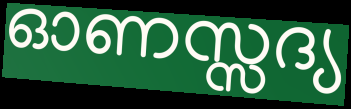
ഓണസ്സദ്യ